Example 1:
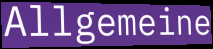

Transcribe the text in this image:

Allgemeine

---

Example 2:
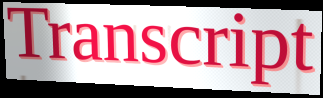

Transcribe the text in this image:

Transcript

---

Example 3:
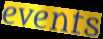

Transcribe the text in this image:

events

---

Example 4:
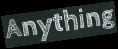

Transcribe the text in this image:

Anything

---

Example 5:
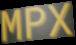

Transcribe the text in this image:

MPX